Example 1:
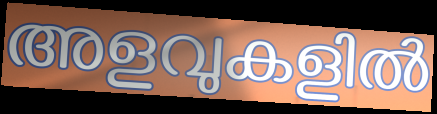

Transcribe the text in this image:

അളവുകളിൽ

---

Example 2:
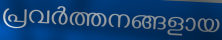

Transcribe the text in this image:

പ്രവർത്തനങ്ങളായ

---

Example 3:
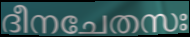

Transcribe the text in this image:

ദീനചേതസഃ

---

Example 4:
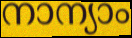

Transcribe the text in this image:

നാന്യാം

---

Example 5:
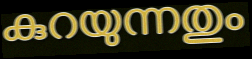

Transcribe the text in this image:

കുറയുന്നതും